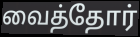
வைத்தோர்